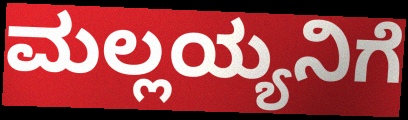
ಮಲ್ಲಯ್ಯನಿಗೆ